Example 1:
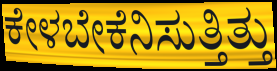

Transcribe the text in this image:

ಕೇಳಬೇಕೆನಿಸುತ್ತಿತ್ತು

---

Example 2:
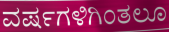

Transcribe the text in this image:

ವರ್ಷಗಳಿಗಿಂತಲೂ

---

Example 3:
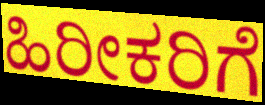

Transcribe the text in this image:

ಹಿರೀಕರಿಗೆ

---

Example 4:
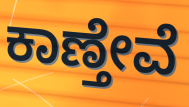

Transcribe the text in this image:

ಕಾಣ್ತೇವೆ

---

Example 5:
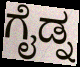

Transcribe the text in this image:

ಗೈಡ್ನ